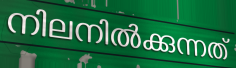
നിലനിൽക്കുന്നത്